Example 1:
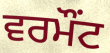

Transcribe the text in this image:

ਵਰਮੌਂਟ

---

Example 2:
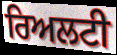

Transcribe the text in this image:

ਰਿਅਲਟੀ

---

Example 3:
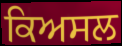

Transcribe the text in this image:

ਕਿਅਸਲ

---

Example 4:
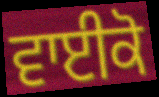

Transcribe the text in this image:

ਵਾਈਕੋ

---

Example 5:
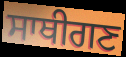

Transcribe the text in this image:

ਸਾਥੀਗਣ